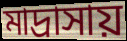
মাদ্রাসায়